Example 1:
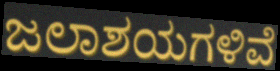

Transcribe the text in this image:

ಜಲಾಶಯಗಳಿವೆ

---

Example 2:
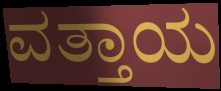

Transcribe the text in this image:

ವತ್ತಾಯ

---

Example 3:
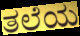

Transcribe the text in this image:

ತಲೆಯ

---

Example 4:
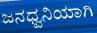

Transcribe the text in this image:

ಜನಧ್ವನಿಯಾಗಿ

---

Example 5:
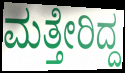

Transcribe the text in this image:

ಮತ್ತೇರಿದ್ದ